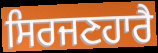
ਸਿਰਜਣਹਾਰੈ